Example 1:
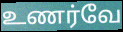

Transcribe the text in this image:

உணர்வே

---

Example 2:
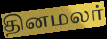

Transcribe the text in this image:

தினமலர்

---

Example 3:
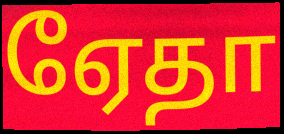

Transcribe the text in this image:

ஏேதா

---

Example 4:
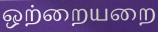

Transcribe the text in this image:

ஒற்றையறை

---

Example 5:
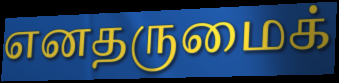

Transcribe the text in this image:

எனதருமைக்